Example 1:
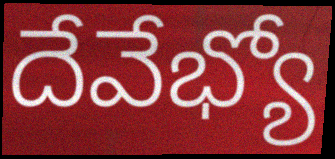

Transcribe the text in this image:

దేవేభ్యో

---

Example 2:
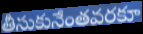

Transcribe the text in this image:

తీసుకునేంతవరకూ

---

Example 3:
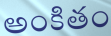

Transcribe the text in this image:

అంకితం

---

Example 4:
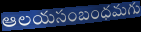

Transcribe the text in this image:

ఆలయసంబంధమగు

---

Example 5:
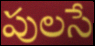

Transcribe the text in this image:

పులసే